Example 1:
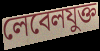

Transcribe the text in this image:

লেবেলযুক্ত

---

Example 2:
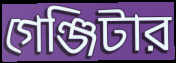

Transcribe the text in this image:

গেঞ্জিটার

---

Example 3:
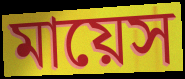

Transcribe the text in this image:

মায়েস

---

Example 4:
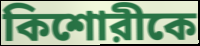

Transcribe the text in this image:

কিশোরীকে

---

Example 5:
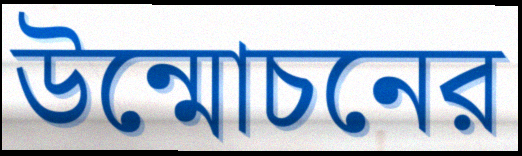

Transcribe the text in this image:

উন্মোচনের